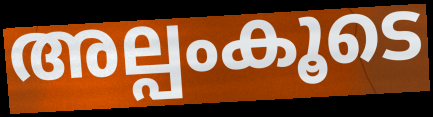
അല്പംകൂടെ